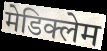
मेडिक्लेम